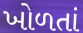
ખોળતાં